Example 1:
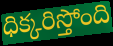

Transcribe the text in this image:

ధిక్కరిస్తోంది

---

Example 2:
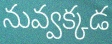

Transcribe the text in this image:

నువ్వక్కడ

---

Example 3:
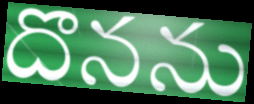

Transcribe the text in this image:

దొనను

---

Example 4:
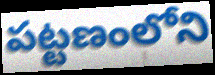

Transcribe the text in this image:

పట్టణంలోని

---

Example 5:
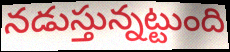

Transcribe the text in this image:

నడుస్తున్నట్టుంది